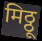
मिठ्ठू